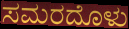
ಸಮರದೊಳು